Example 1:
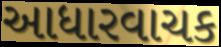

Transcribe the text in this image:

આધારવાચક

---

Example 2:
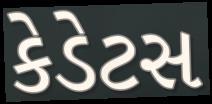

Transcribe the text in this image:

કેડેટસ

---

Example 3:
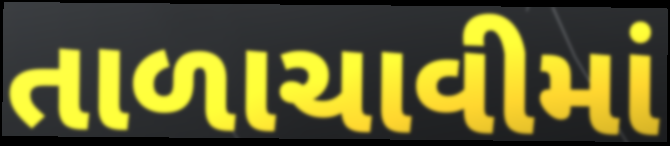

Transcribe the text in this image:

તાળાચાવીમાં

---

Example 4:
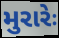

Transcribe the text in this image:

મુરારેઃ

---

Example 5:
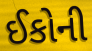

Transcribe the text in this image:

ઈકોની